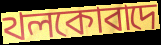
থলকোবাদে